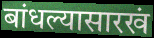
बांधल्यासारखं